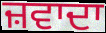
ਜ਼ਵਾਦਾ